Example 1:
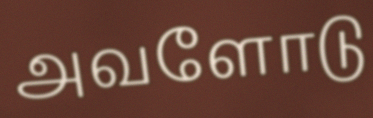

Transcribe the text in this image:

அவளோடு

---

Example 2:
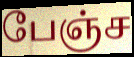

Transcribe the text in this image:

பேஞ்ச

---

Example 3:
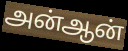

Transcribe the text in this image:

அன்ஆன்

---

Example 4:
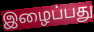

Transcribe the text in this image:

இழைப்பது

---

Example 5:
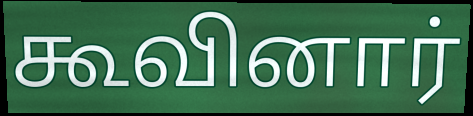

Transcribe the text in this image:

கூவினார்